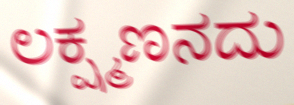
ಲಕ್ಷ್ಮಣನದು